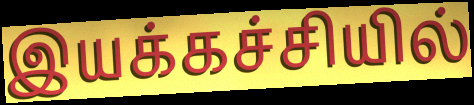
இயக்கச்சியில்